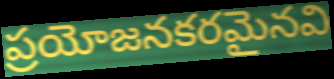
ప్రయోజనకరమైనవి